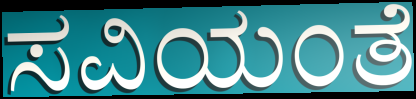
ಸವಿಯಂತೆ